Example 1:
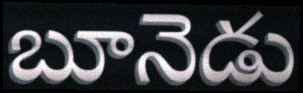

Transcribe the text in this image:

బూనెడు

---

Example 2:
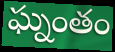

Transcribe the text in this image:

ఘ్నంతం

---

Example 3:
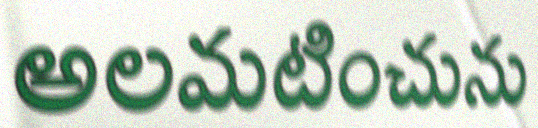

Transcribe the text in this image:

అలమటించును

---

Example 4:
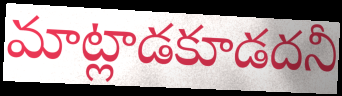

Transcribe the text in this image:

మాట్లాడకూడదనీ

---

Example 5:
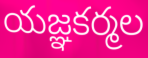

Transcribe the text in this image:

యజ్ఞకర్మల